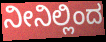
ನೀನಿಲ್ಲಿಂದ